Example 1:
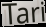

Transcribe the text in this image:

Tari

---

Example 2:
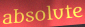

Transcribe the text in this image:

absolute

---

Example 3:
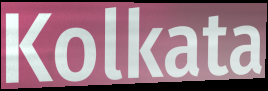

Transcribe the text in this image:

Kolkata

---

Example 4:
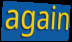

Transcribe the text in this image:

again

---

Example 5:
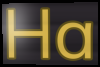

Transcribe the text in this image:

Ha